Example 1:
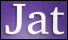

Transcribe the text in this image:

Jat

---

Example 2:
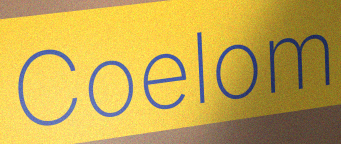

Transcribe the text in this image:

Coelom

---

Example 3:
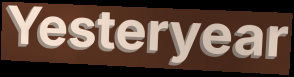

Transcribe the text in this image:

Yesteryear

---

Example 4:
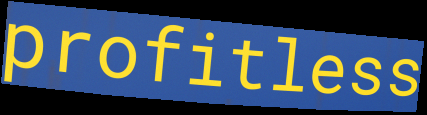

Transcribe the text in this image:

profitless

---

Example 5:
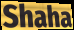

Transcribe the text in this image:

Shaha